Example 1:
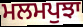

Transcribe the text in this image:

ਮਲਮਪੁਝਾ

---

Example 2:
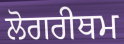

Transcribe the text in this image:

ਲੋਗਰੀਥਮ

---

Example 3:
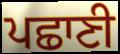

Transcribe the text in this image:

ਪਛਾਣੀ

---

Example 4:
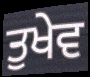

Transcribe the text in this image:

ਤੁਖੇਵ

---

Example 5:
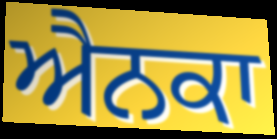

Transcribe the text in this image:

ਐਨਕਾ